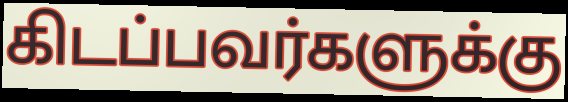
கிடப்பவர்களுக்கு